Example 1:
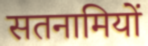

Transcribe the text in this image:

सतनामियों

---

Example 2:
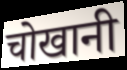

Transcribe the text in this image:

चोखानी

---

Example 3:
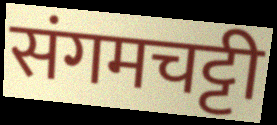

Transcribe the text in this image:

संगमचट्टी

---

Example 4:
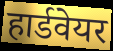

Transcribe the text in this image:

हार्डवेयर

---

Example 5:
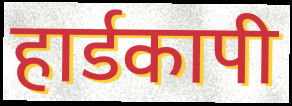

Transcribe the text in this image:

हार्डकापी